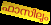
ഫാസിലും